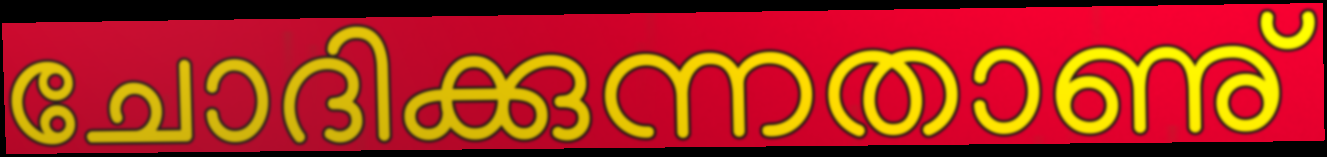
ചോദിക്കുന്നതാണു്